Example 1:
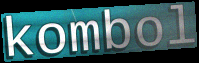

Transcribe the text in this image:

kombol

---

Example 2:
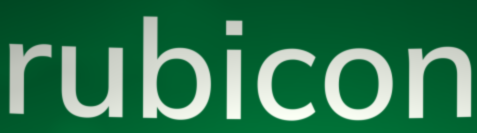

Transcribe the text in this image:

rubicon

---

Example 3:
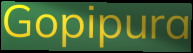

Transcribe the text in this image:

Gopipura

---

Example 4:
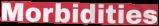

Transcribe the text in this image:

Morbidities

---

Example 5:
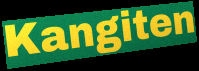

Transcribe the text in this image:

Kangiten